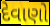
દેવાણો